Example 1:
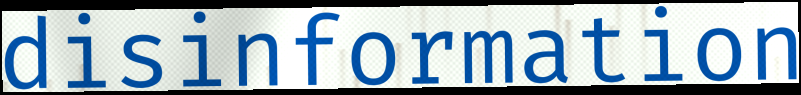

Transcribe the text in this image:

disinformation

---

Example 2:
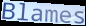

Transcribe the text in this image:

Blames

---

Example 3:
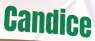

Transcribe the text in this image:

Candice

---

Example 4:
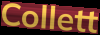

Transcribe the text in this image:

Collett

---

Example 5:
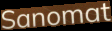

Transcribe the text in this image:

Sanomat